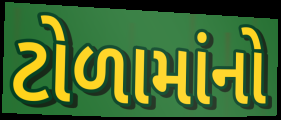
ટોળામાંનો